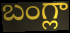
బంగ్లా